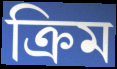
ক্রিম